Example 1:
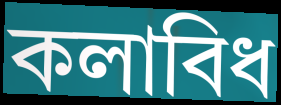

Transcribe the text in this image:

কলাবিধ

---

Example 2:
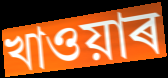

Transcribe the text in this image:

খাওয়াৰ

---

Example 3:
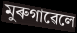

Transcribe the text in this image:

মুৰুগাৱেলে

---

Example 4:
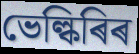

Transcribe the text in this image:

ভেল্কিৰিৰ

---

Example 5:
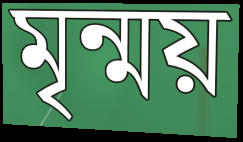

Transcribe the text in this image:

মৃন্ময়